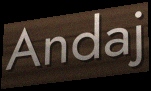
Andaj